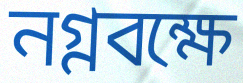
নগ্নবক্ষে